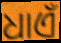
ଧାଏଁ